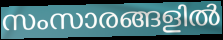
സംസാരങ്ങളിൽ